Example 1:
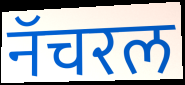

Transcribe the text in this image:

नॅचरल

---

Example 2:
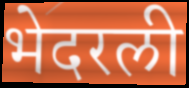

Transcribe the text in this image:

भेदरली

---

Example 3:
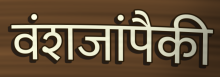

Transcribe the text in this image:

वंशजांपैकी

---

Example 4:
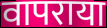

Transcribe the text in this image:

वापराया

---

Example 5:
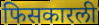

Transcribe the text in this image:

फिसकारली